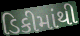
ડિકીમાંથી